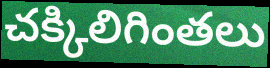
చక్కిలిగింతలు